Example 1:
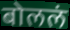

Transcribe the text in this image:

बोललं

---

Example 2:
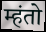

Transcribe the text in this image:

म्हंतो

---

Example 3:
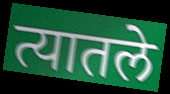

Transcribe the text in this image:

त्यातले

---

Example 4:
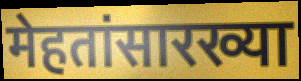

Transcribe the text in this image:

मेहतांसारख्या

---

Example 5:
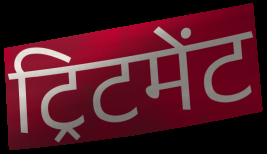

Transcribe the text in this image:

ट्रिटमेंट